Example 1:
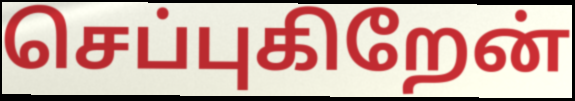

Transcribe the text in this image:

செப்புகிறேன்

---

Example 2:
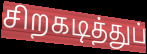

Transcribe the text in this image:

சிறகடித்துப்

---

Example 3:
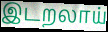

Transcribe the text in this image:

இடறலாய்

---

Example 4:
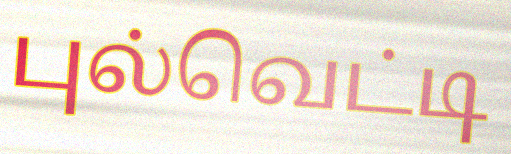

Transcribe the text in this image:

புல்வெட்டி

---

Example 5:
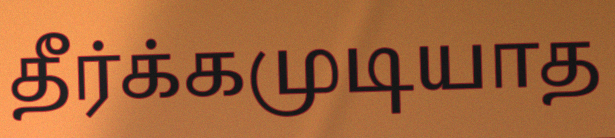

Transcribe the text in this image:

தீர்க்கமுடியாத